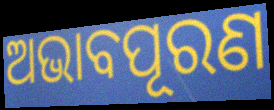
ଅଭାବପୂରଣ